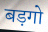
बड़गो